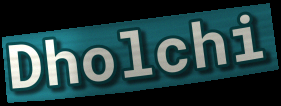
Dholchi